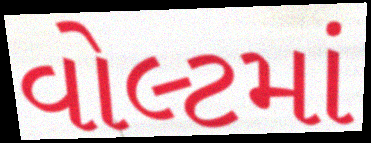
વોલ્ટમાં